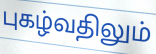
புகழ்வதிலும்